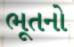
ભૂતનો